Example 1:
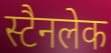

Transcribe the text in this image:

स्टैनलेक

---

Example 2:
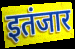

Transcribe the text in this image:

इतंजार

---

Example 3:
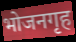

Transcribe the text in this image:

भोजनगृह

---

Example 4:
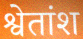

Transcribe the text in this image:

श्वेतांश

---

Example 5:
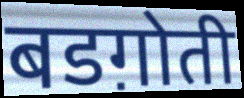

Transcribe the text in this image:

बडग़ोती